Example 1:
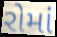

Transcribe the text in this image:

રોમાં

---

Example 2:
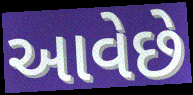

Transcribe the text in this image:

આવેછે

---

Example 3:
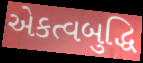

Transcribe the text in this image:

એકત્વબુદ્ધિ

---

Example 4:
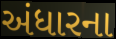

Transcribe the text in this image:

અંધારના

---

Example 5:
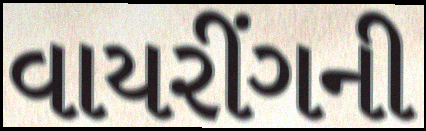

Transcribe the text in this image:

વાયરીંગની